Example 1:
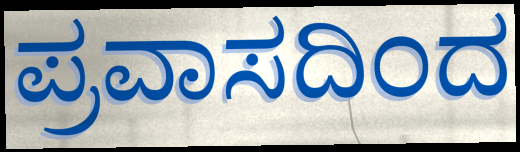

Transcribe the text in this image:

ಪ್ರವಾಸದಿಂದ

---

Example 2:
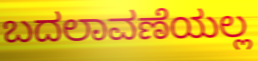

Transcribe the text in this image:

ಬದಲಾವಣೆಯಲ್ಲ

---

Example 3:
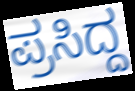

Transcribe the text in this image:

ಪ್ರಸಿದ್ದ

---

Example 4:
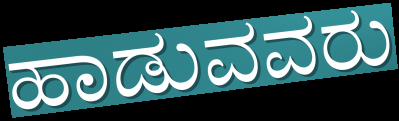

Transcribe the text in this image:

ಹಾಡುವವರು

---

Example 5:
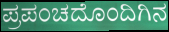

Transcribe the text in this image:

ಪ್ರಪಂಚದೊಂದಿಗಿನ